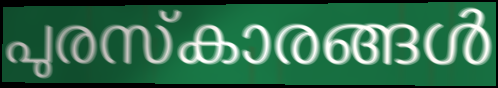
പുരസ്‌കാരങ്ങൾ